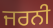
ਜਰਨੀ